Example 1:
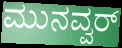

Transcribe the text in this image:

ಮುನವ್ವರ್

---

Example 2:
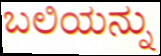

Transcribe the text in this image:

ಬಲಿಯನ್ನು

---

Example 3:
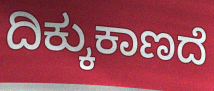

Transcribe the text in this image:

ದಿಕ್ಕುಕಾಣದೆ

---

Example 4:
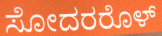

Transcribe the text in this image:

ಸೋದರರೊಳ್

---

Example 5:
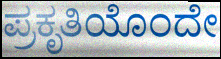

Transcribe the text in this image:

ಪ್ರಕೃತಿಯೊಂದೇ